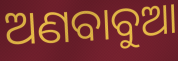
ଅଣବାବୁଆ